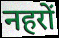
नहरों